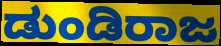
ಡುಂಡಿರಾಜ